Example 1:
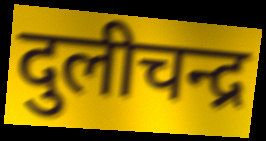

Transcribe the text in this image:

दुलीचन्द्र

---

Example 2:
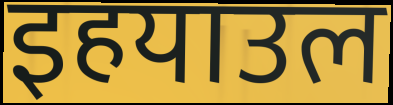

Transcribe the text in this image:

इहयाउल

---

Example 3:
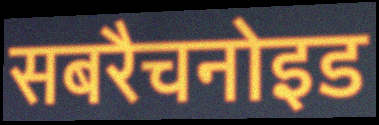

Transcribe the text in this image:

सबरैचनोइड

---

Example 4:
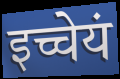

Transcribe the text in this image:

इच्चेयं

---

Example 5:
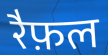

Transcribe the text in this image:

रैफ़ल